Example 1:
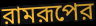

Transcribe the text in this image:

রামরূপের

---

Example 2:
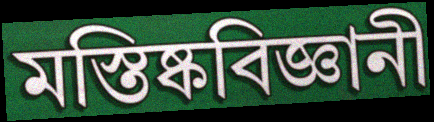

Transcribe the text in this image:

মস্তিষ্কবিজ্ঞানী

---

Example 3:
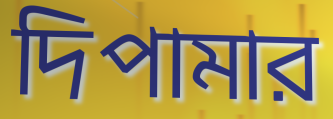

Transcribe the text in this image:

দিপামার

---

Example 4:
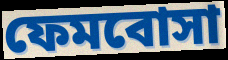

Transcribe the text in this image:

ফেমবোসা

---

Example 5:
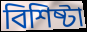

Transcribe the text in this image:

বিশিষ্টা